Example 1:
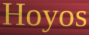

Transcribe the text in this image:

Hoyos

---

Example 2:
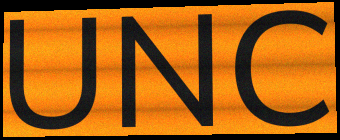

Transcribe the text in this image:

UNC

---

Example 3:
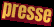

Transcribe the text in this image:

presse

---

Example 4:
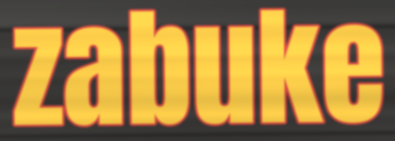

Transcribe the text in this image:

zabuke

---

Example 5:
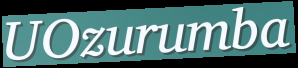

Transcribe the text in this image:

UOzurumba